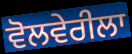
ਵੋਲਵੇਰੀਲਾ